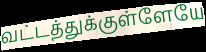
வட்டத்துக்குள்ளேயே